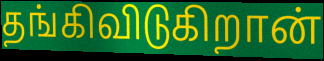
தங்கிவிடுகிறான்